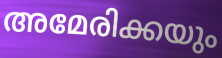
അമേരിക്കയും